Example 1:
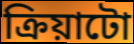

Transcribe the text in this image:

ক্ৰিয়াটো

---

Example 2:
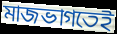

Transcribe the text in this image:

মাজভাগতেই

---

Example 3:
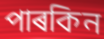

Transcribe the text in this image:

পাৰকিন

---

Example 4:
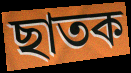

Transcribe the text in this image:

ছাতক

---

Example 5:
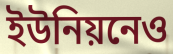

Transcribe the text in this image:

ইউনিয়নেও